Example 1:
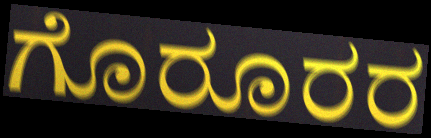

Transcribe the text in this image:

ಗೊರೂರರ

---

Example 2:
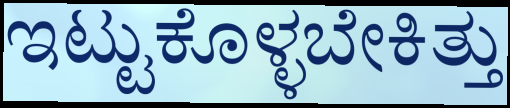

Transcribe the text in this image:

ಇಟ್ಟುಕೊಳ್ಳಬೇಕಿತ್ತು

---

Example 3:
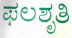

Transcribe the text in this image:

ಫಲಶೃತಿ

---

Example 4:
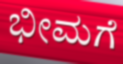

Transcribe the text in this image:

ಭೀಮಗೆ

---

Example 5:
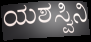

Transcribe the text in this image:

ಯಶಸ್ವಿನಿ